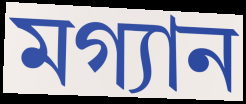
মগ্যান